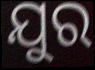
ଯୁର